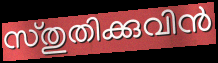
സ്തുതിക്കുവിൻ